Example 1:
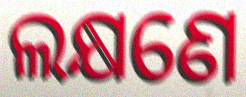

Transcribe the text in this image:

ଲକ୍ଷଣେ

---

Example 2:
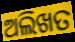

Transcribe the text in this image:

ଅଲିଖତ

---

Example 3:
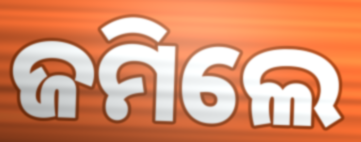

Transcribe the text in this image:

ଜମିଲେ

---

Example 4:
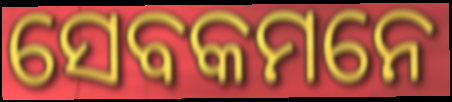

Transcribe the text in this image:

ସେବକମନେ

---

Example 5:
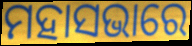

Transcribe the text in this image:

ମହାସଭାରେ